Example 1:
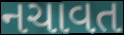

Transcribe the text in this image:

નચાવત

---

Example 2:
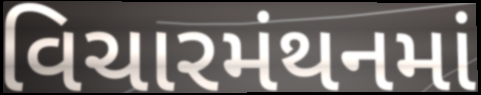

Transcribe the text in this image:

વિચારમંથનમાં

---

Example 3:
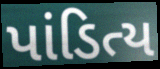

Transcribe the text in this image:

પાંડિત્ય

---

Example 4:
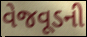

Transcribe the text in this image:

વેજવૂડની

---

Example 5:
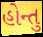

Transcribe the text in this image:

હોન્તુ